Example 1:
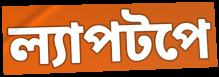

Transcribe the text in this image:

ল্যাপটপে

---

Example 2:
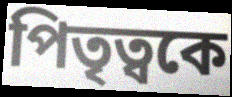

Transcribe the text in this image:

পিতৃত্বকে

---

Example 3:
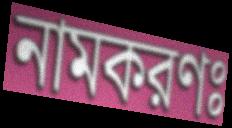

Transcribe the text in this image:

নামকরণঃ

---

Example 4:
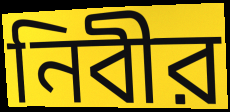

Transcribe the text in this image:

নিবীর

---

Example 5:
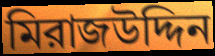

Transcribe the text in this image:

মিরাজউদ্দিন